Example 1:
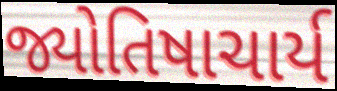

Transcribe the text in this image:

જ્યોતિષાચાર્ય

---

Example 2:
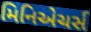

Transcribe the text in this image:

મિનિએચર્સ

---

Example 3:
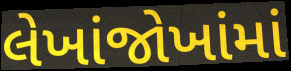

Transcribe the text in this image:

લેખાંજોખાંમાં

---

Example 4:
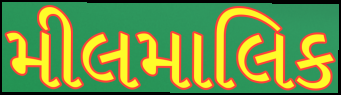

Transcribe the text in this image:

મીલમાલિક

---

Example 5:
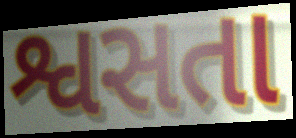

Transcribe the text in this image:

શ્વસતા